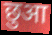
छुआ